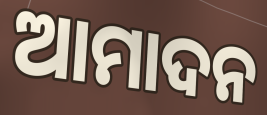
ଆମାଦନ